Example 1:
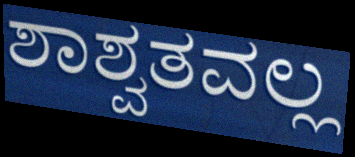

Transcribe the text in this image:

ಶಾಶ್ವತವಲ್ಲ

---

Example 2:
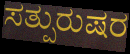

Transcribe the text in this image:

ಸತ್ಪುರುಷರ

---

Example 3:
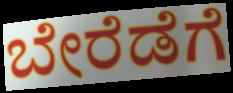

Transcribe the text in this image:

ಬೇರೆಡೆಗೆ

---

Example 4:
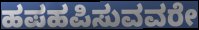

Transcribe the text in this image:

ಹಪಹಪಿಸುವವರೇ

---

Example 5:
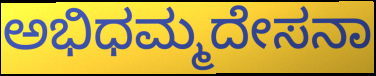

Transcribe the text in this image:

ಅಭಿಧಮ್ಮದೇಸನಾ